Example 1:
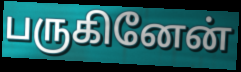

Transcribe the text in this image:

பருகினேன்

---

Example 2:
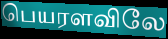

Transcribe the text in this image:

பெயரளவிலே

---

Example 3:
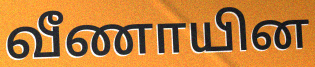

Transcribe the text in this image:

வீணாயின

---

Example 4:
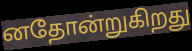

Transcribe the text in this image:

னதோன்றுகிறது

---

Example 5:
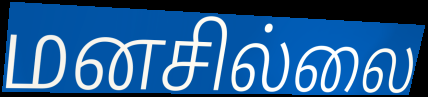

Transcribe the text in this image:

மனசில்லை